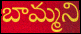
బామ్మని